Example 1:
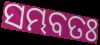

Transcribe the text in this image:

ସମ୍ଭବତଃ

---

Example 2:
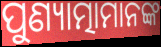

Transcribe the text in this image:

ପୁଣ୍ୟାତ୍ମାମାନଙ୍କ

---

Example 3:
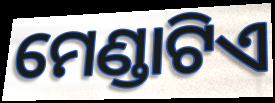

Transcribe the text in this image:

ମେଣ୍ଡାଟିଏ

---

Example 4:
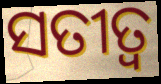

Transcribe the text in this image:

ସତୀତ୍ଵ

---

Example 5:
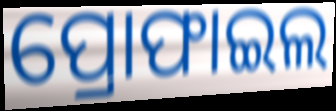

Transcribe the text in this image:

ପ୍ରୋଫାଇଲ